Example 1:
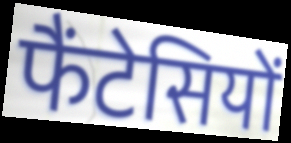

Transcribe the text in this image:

फैंटेसियों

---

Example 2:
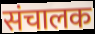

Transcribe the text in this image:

संचालक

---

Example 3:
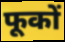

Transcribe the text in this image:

फूकों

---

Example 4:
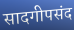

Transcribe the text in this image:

सादगीपसंद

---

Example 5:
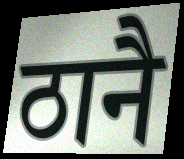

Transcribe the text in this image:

ठानै